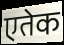
एतेक